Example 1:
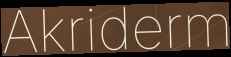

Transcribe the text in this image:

Akriderm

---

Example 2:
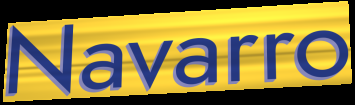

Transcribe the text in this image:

Navarro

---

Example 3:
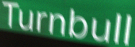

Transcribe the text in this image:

Turnbull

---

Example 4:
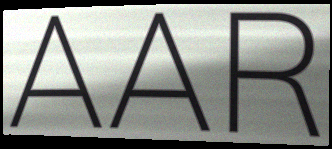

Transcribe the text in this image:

AAR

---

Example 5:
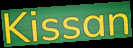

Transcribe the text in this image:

Kissan